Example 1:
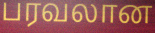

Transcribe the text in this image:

பரவலான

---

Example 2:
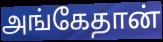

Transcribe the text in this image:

அங்கேதான்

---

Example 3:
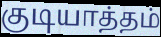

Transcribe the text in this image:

குடியாத்தம்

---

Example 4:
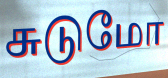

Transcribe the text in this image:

சுடுமோ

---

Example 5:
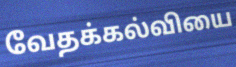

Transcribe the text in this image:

வேதக்கல்வியை